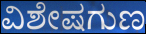
ವಿಶೇಷಗುಣ